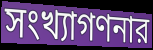
সংখ্যাগণনার